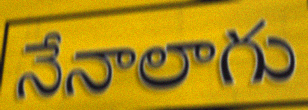
నేనాలాగు